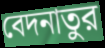
বেদনাতুর